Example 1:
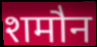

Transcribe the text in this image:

शमौन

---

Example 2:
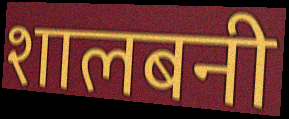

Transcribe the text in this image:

शालबनी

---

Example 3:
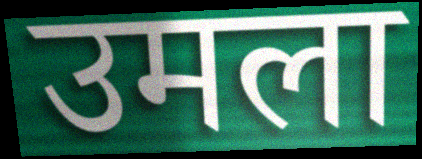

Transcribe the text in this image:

उमला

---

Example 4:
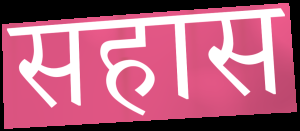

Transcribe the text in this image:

सहास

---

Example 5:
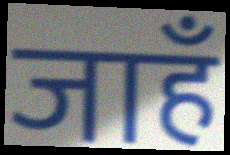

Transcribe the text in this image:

जाहँ